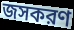
জসকরণ